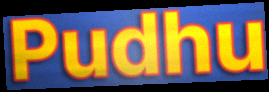
Pudhu